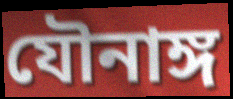
যৌনাঙ্গ